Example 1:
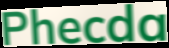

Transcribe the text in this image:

Phecda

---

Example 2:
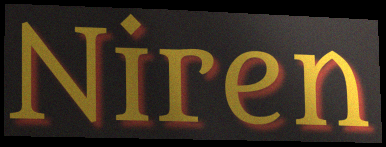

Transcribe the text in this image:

Niren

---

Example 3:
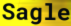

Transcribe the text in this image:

Sagle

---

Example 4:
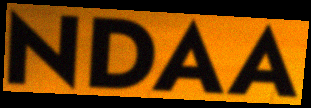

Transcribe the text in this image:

NDAA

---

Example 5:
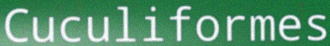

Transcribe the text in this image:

Cuculiformes